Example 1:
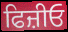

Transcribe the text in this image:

ਫਿਜ਼ੀਓ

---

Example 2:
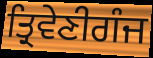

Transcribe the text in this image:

ਤ੍ਰਿਵੇਣੀਗੰਜ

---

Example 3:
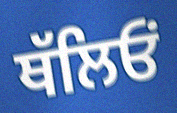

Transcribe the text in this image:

ਥੱਲਿਓਂ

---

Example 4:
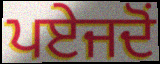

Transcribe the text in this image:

ਪਏਜਦੋਂ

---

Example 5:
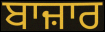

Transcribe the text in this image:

ਬਾਜ਼ਾਰ